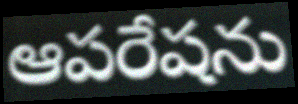
ఆపరేషను